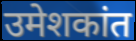
उमेशकांत